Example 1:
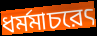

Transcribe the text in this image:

ধর্মমাচরেৎ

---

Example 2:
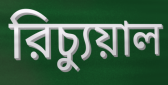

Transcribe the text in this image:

রিচ্যুয়াল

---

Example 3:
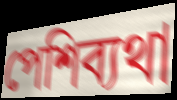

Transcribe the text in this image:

পেশিব্যথা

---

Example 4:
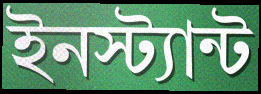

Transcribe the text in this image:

ইনস্ট্যান্ট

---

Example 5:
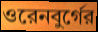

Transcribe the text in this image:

ওরেনবুর্গের